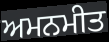
ਅਮਨਮੀਤ